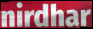
nirdhar